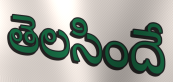
తెలసిందే